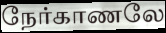
நேர்காணலே